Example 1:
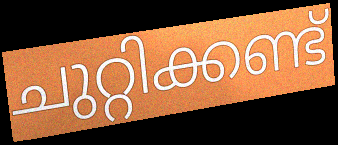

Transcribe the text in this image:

ചുറ്റിക്കണ്ട്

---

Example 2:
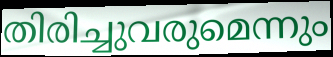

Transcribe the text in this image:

തിരിച്ചുവരുമെന്നും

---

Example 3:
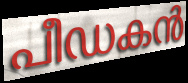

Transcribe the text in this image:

പീഡകൻ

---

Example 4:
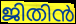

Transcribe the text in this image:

ജിതിൻ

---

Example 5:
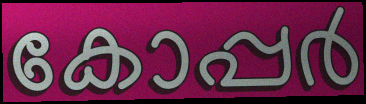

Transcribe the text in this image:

കോപ്പർ